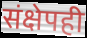
संक्षेपही